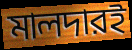
মালদারই